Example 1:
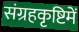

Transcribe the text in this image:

संग्रहकृष्टिमें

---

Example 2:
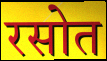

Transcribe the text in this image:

रसोत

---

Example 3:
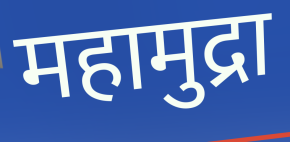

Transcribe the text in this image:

महामुद्रा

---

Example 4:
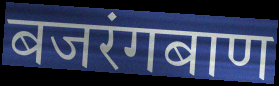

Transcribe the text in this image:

बजरंगबाण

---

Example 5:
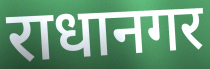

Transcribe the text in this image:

राधानगर